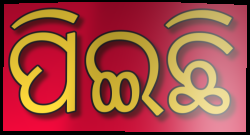
ପିଇଛି